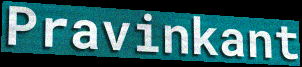
Pravinkant